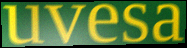
uvesa